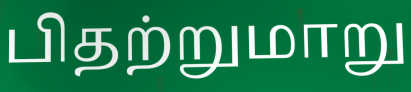
பிதற்றுமாறு